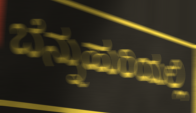
ಬೆನ್ನುಹುರಿಯಲ್ಲಿ